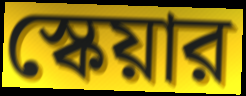
স্কেয়ার